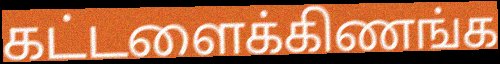
கட்டளைக்கிணங்க